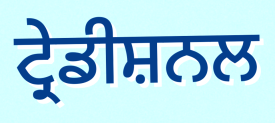
ਟ੍ਰੇਡੀਸ਼ਨਲ